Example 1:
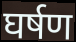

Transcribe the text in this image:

घर्षण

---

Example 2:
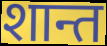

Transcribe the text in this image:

शान्त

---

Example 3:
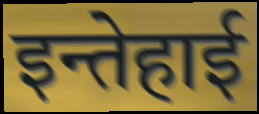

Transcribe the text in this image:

इन्तेहाई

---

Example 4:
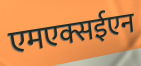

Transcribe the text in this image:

एमएक्सईएन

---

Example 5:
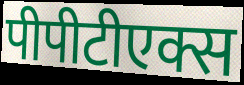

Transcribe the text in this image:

पीपीटीएक्स